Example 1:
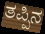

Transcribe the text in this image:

ತಪ್ಪಿನ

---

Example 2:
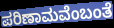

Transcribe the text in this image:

ಪರಿಣಾಮವೆಂಬಂತೆ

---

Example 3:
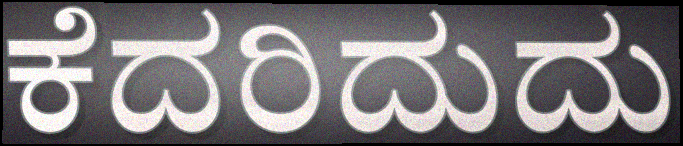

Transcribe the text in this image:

ಕೆದರಿದುದು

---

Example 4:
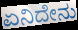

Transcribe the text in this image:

ಏನಿದೇನು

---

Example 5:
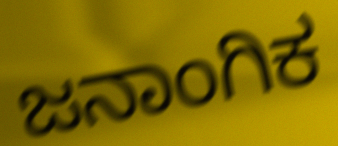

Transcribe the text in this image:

ಜನಾಂಗಿಕ